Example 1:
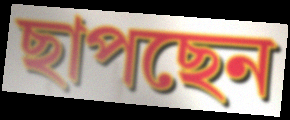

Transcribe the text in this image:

ছাপছেন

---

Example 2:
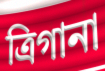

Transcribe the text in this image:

ত্রিগানা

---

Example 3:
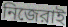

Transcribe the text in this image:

নিজেরাই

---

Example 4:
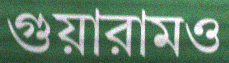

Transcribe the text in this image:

গুয়ারামও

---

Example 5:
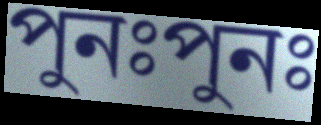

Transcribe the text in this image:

পুনঃপুনঃ